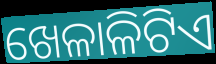
ଖେଳାଳିଟିଏ